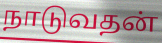
நாடுவதன்